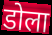
डोला